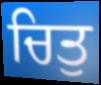
ਚਿਤੁ